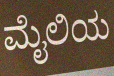
ಮೈಲಿಯ